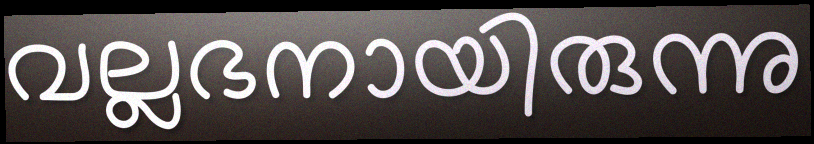
വല്ലഭനായിരുന്നു